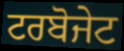
ਟਰਬੋਜੇਟ